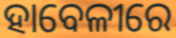
ହାବେଳୀରେ